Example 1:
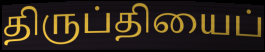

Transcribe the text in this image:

திருப்தியைப்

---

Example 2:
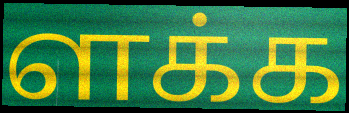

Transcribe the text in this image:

ளக்க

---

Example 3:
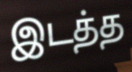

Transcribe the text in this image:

இடத்த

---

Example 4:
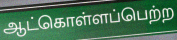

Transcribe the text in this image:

ஆட்கொள்ளப்பெற்ற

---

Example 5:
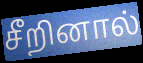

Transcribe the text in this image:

சீறினால்